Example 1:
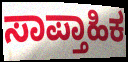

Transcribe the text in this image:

ಸಾಪ್ತಾಹಿಕ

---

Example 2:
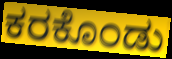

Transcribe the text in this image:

ಕರಕೊಂಡು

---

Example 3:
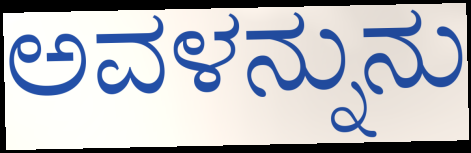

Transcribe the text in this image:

ಅವಳನ್ನುನು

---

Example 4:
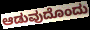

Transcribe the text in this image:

ಆಡುವುದೊಂದು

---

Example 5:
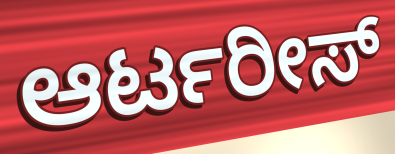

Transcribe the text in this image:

ಆರ್ಟರೀಸ್